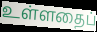
உள்ளதைப்